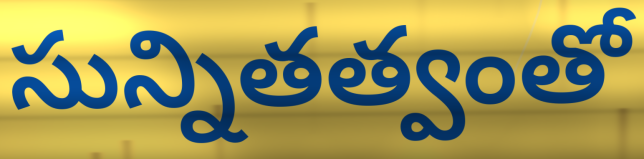
సున్నితత్వంతో